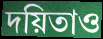
দয়িতাও